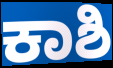
ಕಾಶಿ